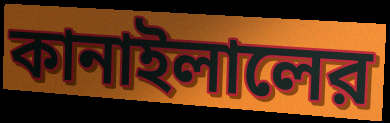
কানাইলালের